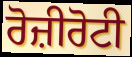
ਰੋਜ਼ੀਰੋਟੀ